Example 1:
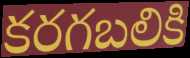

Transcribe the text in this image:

కరగబలికి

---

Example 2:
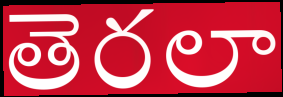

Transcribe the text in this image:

తెరలా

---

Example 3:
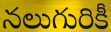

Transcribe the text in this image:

నలుగురికీ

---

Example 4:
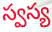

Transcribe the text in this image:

స్వస్య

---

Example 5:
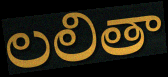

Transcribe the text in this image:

లలితా